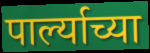
पार्ल्याच्या